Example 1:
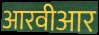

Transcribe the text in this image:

आरवीआर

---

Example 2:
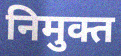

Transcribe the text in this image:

निमुक्त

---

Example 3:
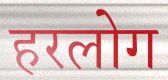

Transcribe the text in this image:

हरलोग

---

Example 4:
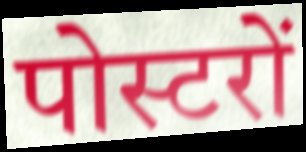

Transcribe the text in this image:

पोस्‍टरों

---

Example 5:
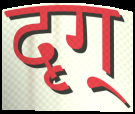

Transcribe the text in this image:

दृग्